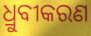
ଧ୍ରୁବୀକରଣ